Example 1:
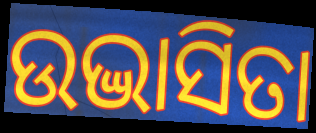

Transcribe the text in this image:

ଉଦ୍ଭାସିତା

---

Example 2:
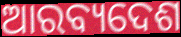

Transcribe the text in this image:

ଆରବ୍ୟଦେଶ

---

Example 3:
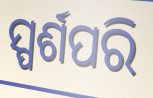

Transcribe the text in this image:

ସ୍ପର୍ଶପରି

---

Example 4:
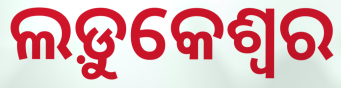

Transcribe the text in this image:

ଲଡ଼ୁକେଶ୍ୱର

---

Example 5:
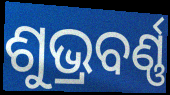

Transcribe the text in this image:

ଶୁଭ୍ରବର୍ଣ୍ଣ